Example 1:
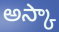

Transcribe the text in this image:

అస్కా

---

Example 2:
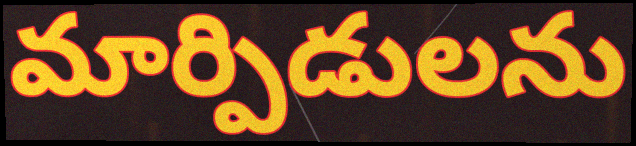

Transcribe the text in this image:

మార్పిడులను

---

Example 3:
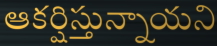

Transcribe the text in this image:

ఆకర్షిస్తున్నాయని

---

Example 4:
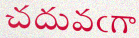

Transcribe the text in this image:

చదువఁగా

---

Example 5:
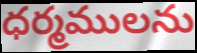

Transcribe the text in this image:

ధర్మములను